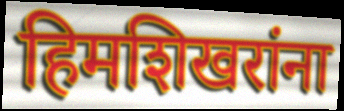
हिमशिखरांना